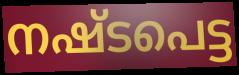
നഷ്ടപെട്ട